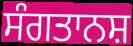
ਸੰਗਤਾਨਸ਼